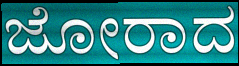
ಜೋರಾದ